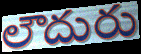
లౌదురు